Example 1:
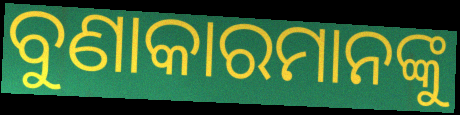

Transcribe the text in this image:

ବୁଣାକାରମାନଙ୍କୁ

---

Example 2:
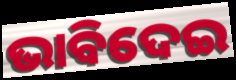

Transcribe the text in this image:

ଭାବିଦେଇ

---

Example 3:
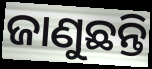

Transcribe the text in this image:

ଜାଣୁଛନ୍ତି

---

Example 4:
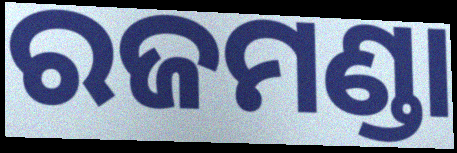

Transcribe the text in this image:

ରଜମଣ୍ଡା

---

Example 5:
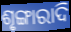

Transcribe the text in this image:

ଶୃଙ୍ଗାରାଦି